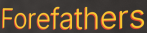
Forefathers